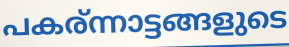
പകര്ന്നാട്ടങ്ങളുടെ